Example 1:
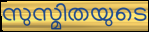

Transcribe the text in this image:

സുസ്മിതയുടെ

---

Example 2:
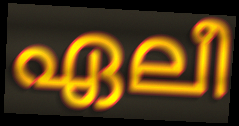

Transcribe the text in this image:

ഏലീ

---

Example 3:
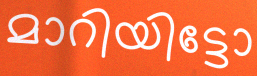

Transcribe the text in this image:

മാറിയിട്ടോ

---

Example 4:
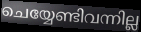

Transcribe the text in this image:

ചെയ്യേണ്ടിവന്നില്ല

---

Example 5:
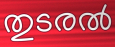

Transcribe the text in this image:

തുടരൽ